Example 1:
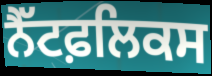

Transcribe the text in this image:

ਨੈੱਟਫ਼ਲਿਕਸ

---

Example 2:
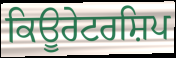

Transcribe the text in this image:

ਕਿਊਰੇਟਰਸ਼ਿਪ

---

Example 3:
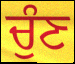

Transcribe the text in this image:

ਚੁੰਣ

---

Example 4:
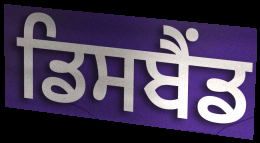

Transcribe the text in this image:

ਡਿਸਬੈਂਡ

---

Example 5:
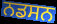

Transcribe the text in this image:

ਨਡਸਨ